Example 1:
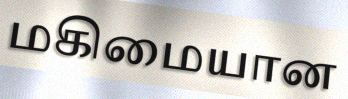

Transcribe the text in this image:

மகிமையான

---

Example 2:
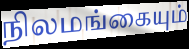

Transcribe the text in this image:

நிலமங்கையும்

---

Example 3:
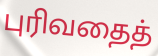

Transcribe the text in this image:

புரிவதைத்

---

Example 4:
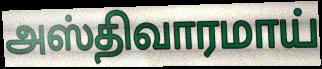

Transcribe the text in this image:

அஸ்திவாரமாய்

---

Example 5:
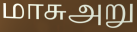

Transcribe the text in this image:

மாசுஅறு